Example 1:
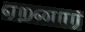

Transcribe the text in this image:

ஏறனார்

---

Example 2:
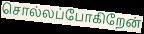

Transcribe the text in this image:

சொல்லப்போகிறேன்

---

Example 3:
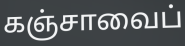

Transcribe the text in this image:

கஞ்சாவைப்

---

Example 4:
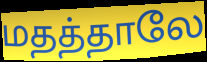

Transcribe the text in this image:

மதத்தாலே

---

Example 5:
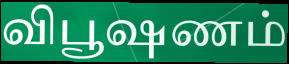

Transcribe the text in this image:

விபூஷணம்